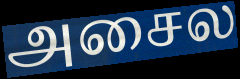
அசைல